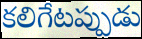
కలిగేటప్పుడు